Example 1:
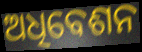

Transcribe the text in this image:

ଅଧିବେଶନ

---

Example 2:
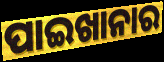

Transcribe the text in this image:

ପାଇଖାନାର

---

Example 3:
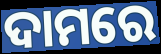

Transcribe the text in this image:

ଦାମରେ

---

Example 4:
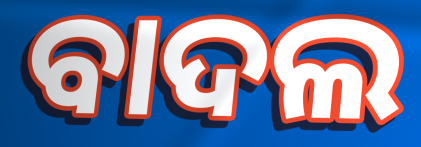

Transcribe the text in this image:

ବାଦଲ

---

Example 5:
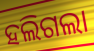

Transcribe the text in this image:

ହଲିଗଲା